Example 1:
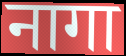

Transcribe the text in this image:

नागा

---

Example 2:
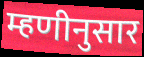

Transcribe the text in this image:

म्हणीनुसार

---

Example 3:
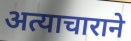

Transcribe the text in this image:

अत्याचाराने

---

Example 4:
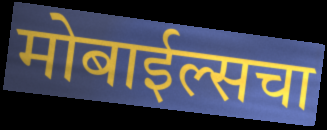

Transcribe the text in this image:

मोबाईल्सचा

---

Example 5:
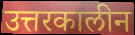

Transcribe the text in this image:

उत्तरकालीन